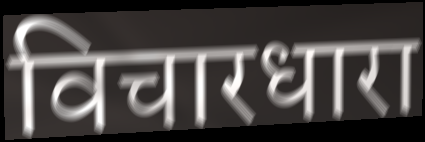
विचारधारा